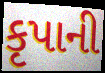
કૃપાની